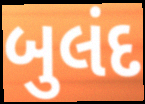
બુલંદ